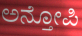
ಅನ್ತೋಪಿ